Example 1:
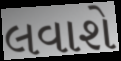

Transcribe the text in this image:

લવાશે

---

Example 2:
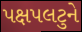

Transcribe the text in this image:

પક્ષપલટુને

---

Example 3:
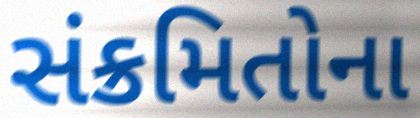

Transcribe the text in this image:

સંક્રમિતોના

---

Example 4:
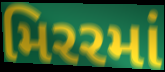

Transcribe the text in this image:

મિરરમાં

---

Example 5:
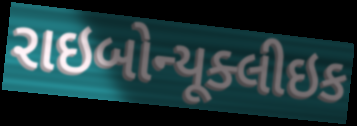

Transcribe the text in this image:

રાઇબોન્યૂક્લીઇક